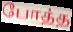
போத்த